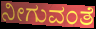
ನೀಗುವಂತೆ